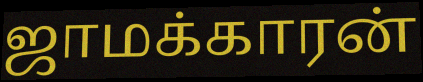
ஜாமக்காரன்